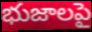
భుజాలపై